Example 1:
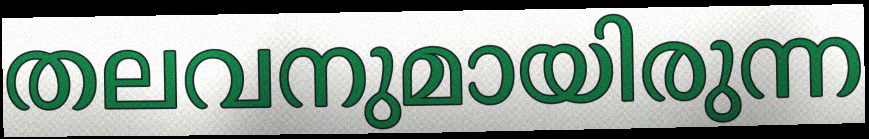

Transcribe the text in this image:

തലവനുമായിരുന്ന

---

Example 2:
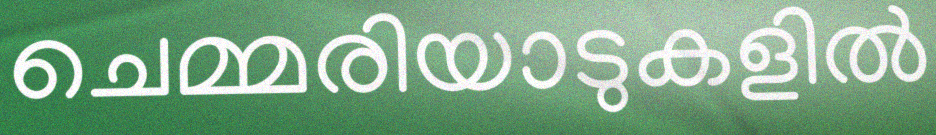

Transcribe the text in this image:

ചെമ്മരിയാടുകളിൽ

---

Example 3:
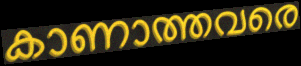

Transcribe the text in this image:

കാണാത്തവരെ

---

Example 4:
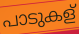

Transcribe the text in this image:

പാടുകള്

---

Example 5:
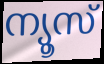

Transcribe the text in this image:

ന്യൂസ്